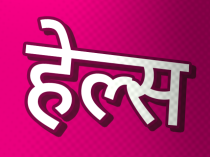
हेल्स